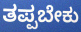
ತಪ್ಪಬೇಕು